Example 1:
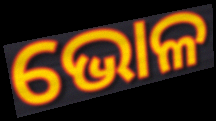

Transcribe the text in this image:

ଭୋଳ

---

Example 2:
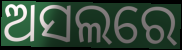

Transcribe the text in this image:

ଅସଲରେ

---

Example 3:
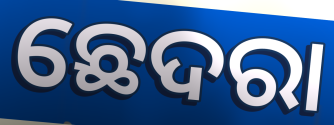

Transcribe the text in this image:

ଛେଦରା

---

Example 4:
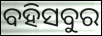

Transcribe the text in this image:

ବହିସବୁର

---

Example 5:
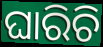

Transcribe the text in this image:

ଘାରିଚି